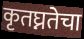
कृतघ्नतेचा